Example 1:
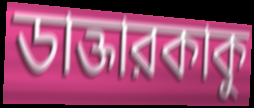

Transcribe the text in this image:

ডাক্তারকাকু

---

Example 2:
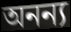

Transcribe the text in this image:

অনন্য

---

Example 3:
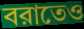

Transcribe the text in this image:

বরাতেও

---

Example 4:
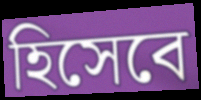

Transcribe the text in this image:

হিসেবে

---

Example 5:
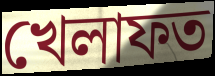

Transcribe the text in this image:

খেলাফত